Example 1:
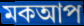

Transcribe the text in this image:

মকআপ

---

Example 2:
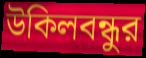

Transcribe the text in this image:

উকিলবন্ধুর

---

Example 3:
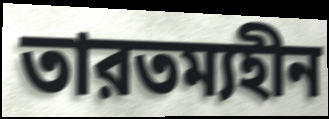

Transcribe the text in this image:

তারতম্যহীন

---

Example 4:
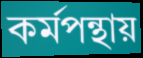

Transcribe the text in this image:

কর্মপন্থায়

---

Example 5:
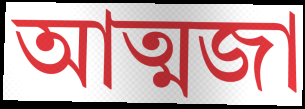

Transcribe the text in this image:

আত্মজা